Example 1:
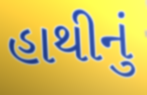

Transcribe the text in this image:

હાથીનું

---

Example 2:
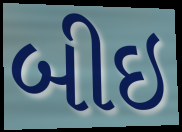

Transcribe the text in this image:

બીઇ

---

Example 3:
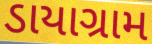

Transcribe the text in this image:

ડાયાગ્રામ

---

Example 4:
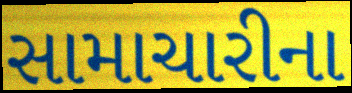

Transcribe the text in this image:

સામાચારીના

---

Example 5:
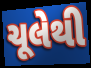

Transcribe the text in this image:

ચૂલેથી